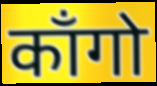
काँगो